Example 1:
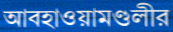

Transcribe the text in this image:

আবহাওয়ামণ্ডলীর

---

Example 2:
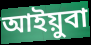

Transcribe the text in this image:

আইয়ুবা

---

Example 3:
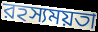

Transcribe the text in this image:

রহস্যময়তা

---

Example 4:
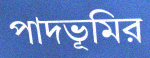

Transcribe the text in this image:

পাদভূমির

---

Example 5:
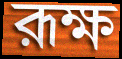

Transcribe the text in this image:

রূক্ষ